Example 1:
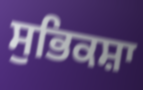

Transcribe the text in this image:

ਸੁਭਿਕਸ਼ਾ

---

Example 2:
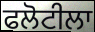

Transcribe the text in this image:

ਫਲੋਟੀਲਾ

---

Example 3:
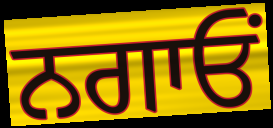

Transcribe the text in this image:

ਨਗਾਓਂ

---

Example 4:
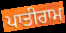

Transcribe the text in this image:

ਪਾਤੀਰਾਮ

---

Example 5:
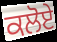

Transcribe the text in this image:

ਕਲੋਏ